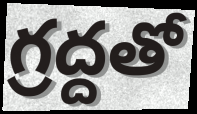
గ్రద్దతో